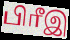
பிரீஇ